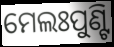
ମେଲଃପୁଣ୍ଟି